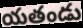
యతండు